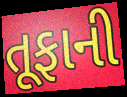
તૂફાની